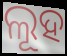
ଲୂହ